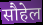
सौहेल